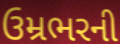
ઉમ્રભરની